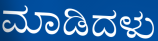
ಮಾಡಿದಳು